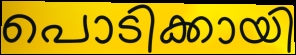
പൊടിക്കായി